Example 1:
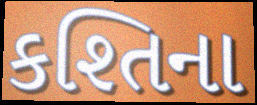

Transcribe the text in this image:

કશ્તિના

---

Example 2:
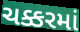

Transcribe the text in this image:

ચક્કરમાં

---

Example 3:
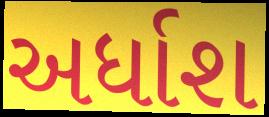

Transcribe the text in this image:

અર્ધાશ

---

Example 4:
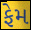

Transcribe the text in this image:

ફેમ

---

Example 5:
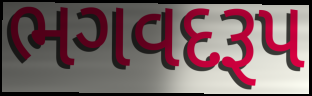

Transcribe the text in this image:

ભગવદરૂપ